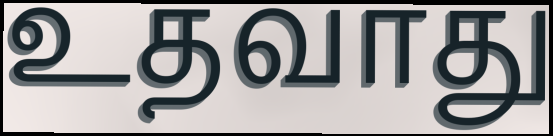
உதவாது